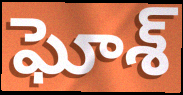
ఘోశ్